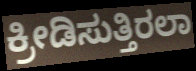
ಕ್ರೀಡಿಸುತ್ತಿರಲಾ